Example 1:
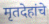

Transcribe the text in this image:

मृतदेहांचे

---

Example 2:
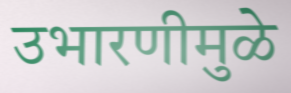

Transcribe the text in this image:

उभारणीमुळे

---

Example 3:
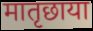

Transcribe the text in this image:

मातृछाया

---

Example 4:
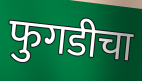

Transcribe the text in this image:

फुगडीचा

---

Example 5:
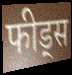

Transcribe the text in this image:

फीड्स